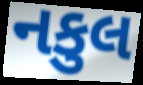
નકુલ